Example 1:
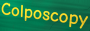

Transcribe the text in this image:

Colposcopy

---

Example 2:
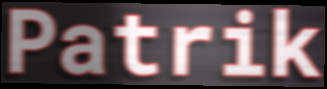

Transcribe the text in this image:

Patrik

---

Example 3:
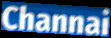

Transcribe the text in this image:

Channai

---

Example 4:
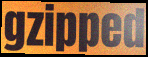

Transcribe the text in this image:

gzipped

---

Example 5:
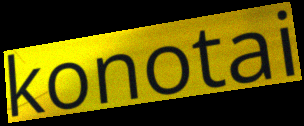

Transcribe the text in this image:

konotai